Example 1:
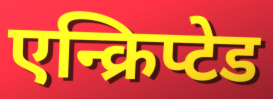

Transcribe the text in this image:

एन्क्रिप्टेड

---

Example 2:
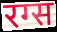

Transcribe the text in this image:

रग्स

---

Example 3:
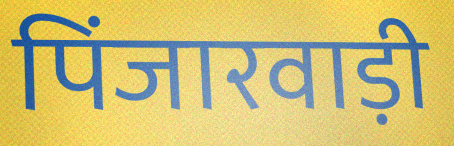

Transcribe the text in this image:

पिंजारवाड़ी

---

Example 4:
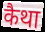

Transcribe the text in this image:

कैथा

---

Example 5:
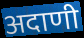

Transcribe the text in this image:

अदाणी